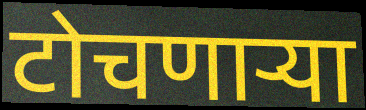
टोचणाऱ्या